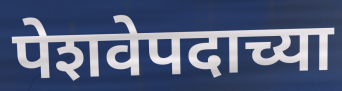
पेशवेपदाच्या